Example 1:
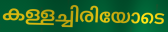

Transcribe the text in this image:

കള്ളച്ചിരിയോടെ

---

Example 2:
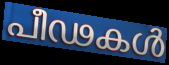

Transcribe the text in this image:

പീഢകൾ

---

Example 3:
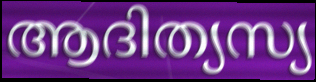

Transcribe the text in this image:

ആദിത്യസ്യ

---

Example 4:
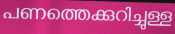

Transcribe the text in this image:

പണത്തെക്കുറിച്ചുള്ള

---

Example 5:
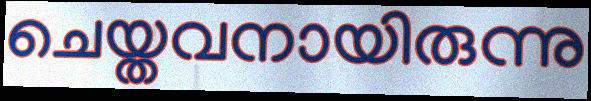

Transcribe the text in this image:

ചെയ്തവനായിരുന്നു